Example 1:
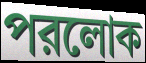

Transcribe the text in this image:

পরলোক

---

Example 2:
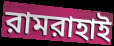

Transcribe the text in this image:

রামরাহাই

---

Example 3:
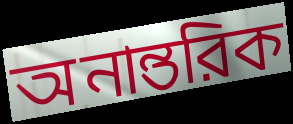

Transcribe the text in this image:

অনান্তরিক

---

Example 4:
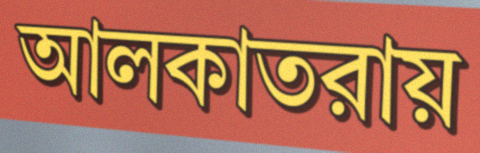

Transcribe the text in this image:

আলকাতরায়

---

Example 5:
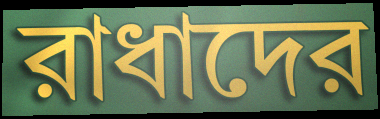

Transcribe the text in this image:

রাধাদের